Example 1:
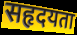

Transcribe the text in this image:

सहृदयता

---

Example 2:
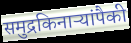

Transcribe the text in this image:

समुद्रकिनाऱ्यांपैकी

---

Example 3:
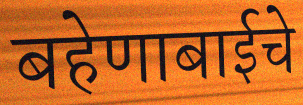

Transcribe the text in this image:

बहेणाबाईचे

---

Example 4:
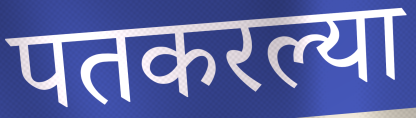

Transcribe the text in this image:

पतकरल्या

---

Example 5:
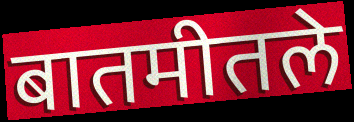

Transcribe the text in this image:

बातमीतले